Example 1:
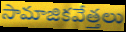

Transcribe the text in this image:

సామాజికవేత్తలు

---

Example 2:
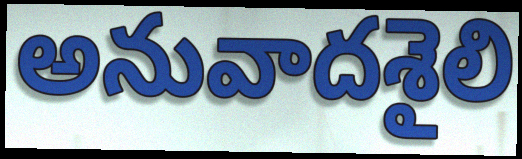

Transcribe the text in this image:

అనువాదశైలి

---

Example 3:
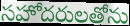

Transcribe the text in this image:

సహోదరులతోను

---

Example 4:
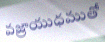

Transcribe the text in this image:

వజ్రాయుధముతో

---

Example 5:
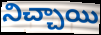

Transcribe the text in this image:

నిచ్చాయి